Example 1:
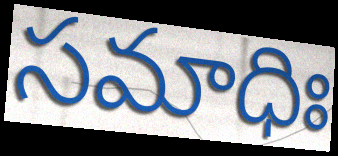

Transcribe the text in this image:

సమాధిః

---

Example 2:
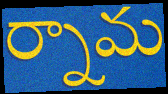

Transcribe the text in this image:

ర్నామ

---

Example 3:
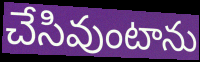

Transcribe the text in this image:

చేసివుంటాను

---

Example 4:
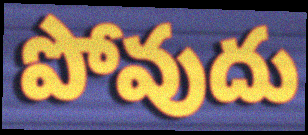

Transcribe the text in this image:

పోవుదు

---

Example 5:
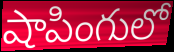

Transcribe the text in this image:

షాపింగులో